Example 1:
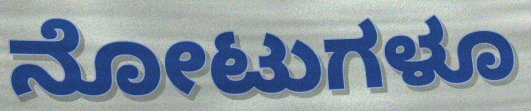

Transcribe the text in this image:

ನೋಟುಗಳೂ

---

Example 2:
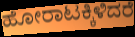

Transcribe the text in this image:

ಹೋರಾಟಕ್ಕಿಳಿದರೆ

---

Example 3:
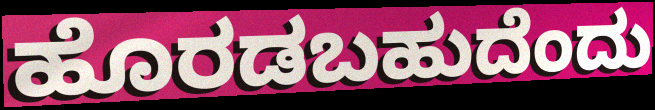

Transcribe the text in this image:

ಹೊರಡಬಹುದೆಂದು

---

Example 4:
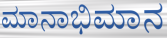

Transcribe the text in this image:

ಮಾನಾಭಿಮಾನ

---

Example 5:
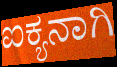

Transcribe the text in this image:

ಐಕ್ಯನಾಗಿ